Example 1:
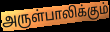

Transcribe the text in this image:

அருள்பாலிக்கும்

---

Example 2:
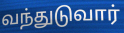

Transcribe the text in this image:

வந்துடுவார்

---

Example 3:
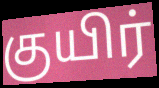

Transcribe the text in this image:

குயிர்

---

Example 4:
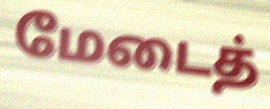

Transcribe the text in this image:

மேடைத்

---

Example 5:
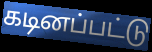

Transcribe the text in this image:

கடினப்பட்டு